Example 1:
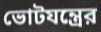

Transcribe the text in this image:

ভোটযন্ত্রের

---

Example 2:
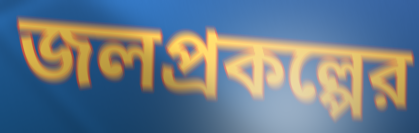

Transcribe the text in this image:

জলপ্রকল্পের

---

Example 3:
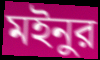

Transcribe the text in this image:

মইনুর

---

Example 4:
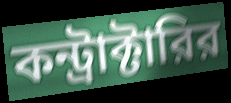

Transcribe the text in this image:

কন্ট্রাক্টারির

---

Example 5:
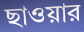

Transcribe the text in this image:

ছাওয়ার